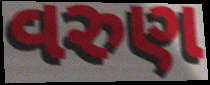
વરુણ